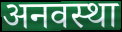
अनवस्था